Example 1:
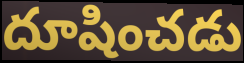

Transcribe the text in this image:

దూషించడు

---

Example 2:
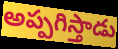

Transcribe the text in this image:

అప్పగిస్తాడు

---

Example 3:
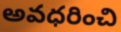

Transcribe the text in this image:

అవధరించి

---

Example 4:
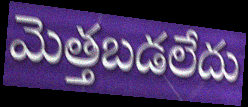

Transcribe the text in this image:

మెత్తబడలేదు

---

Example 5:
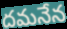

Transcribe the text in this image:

దమనేన